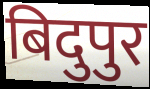
बिदुपुर